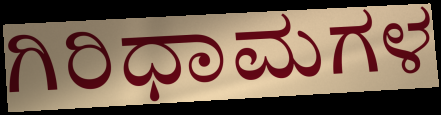
ಗಿರಿಧಾಮಗಳ